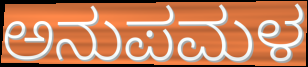
ಅನುಪಮಳ